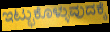
ಇಟ್ಟುಕೊಳ್ಳುವುದಕ್ಕೆ